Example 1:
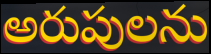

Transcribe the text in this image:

అరుపులను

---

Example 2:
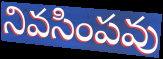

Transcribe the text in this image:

నివసింపవు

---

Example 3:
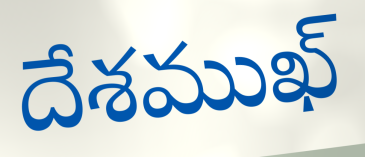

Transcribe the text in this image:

దేశముఖ్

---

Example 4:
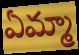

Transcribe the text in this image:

ఏమ్మా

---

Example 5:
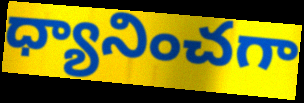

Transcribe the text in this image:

ధ్యానించగా